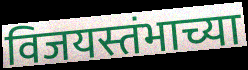
विजयस्तंभाच्या